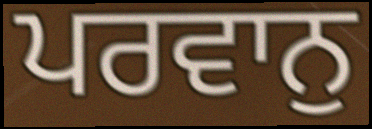
ਪਰਵਾਨੁ